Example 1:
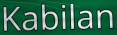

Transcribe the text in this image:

Kabilan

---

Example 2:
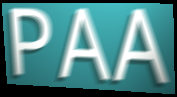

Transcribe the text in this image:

PAA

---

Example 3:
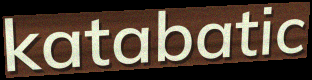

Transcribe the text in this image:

katabatic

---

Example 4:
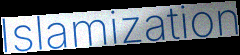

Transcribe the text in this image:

Islamization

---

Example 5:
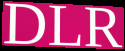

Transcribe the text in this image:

DLR